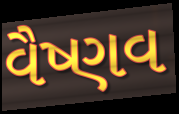
વૈષ્ણવ